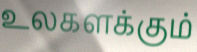
உலகளக்கும்